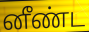
னீண்ட